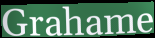
Grahame